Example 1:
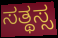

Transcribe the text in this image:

ಸತ್ಥಸ್ಸ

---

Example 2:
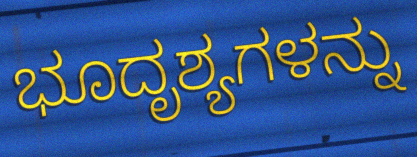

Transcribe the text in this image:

ಭೂದೃಶ್ಯಗಳನ್ನು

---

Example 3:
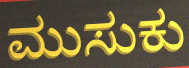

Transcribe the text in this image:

ಮುಸುಕು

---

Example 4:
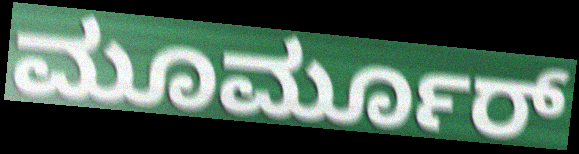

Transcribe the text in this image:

ಮೂರ್ಮೂರ್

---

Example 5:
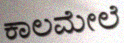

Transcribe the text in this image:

ಕಾಲಮೇಲೆ